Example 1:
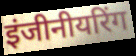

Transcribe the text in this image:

इंजीनीयरिंग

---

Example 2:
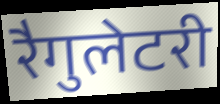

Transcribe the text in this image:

रैगुलेटरी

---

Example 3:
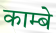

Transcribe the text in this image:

काम्बे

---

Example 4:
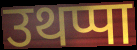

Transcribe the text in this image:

उथप्पा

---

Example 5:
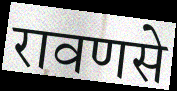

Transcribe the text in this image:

रावणसे